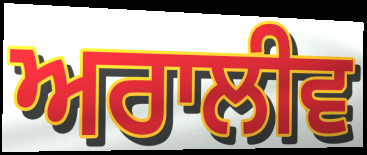
ਅਰਾਲੀਵ